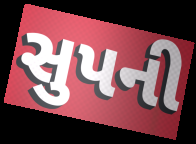
સુપની